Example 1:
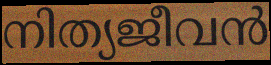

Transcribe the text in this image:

നിത്യജീവൻ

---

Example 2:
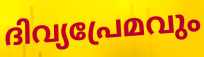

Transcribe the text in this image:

ദിവ്യപ്രേമവും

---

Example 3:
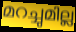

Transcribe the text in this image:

മറച്ചുമില്ല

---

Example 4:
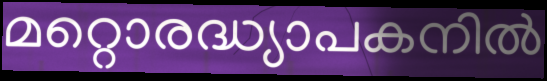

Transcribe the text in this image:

മറ്റൊരദ്ധ്യാപകനിൽ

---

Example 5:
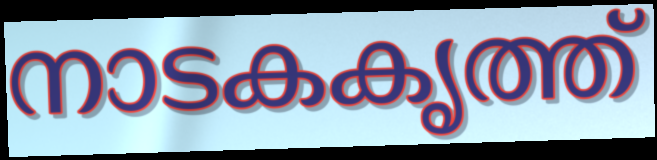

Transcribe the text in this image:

നാടകകൃത്ത്